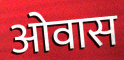
ओवास